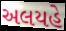
અલયહે